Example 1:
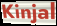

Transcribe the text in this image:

Kinjal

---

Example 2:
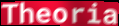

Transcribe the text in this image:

Theoria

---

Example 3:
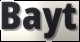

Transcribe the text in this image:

Bayt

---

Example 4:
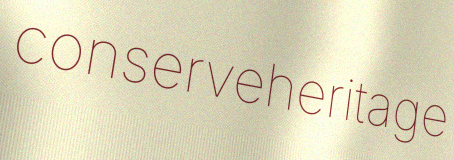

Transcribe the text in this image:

conserveheritage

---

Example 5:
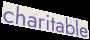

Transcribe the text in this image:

charitable